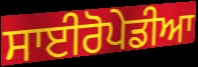
ਸਾਈਰੋਪੇਡੀਆ